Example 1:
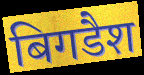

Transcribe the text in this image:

बिगडैश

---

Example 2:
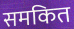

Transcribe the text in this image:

समकित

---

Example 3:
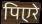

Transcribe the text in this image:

पिएरे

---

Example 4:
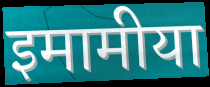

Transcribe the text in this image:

इमामीया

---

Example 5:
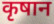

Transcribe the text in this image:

कृषान